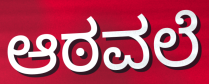
ಆಠವಲೆ